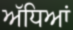
ਅੱਧਿਆਂ